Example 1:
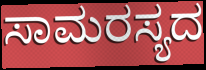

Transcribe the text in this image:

ಸಾಮರಸ್ಯದ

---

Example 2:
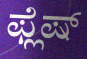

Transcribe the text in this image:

ಫ್ಲೆಷ್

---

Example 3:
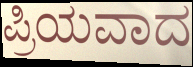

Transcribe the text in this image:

ಪ್ರಿಯವಾದ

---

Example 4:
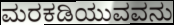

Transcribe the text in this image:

ಮರಕಡಿಯುವವನು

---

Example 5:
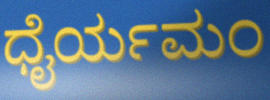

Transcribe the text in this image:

ಧೈರ್ಯಮಂ